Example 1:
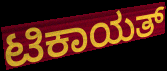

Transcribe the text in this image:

ಟಿಕಾಯತ್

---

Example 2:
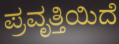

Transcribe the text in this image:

ಪ್ರವೃತ್ತಿಯಿದೆ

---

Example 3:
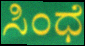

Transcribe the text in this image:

ಸಿಂಧೆ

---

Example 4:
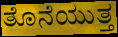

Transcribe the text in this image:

ತೊನೆಯುತ್ತ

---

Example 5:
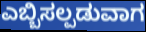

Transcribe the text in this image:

ಎಬ್ಬಿಸಲ್ಪಡುವಾಗ